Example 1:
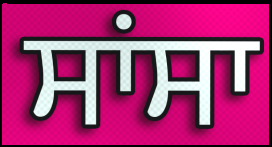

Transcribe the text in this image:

ਸਾਂਸਾ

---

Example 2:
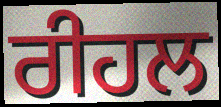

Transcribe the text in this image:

ਰੀਹਲ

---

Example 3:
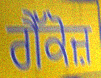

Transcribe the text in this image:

ਗੈੱਕੋਜ਼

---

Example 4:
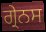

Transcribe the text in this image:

ਗ੍ਰੇਨਸ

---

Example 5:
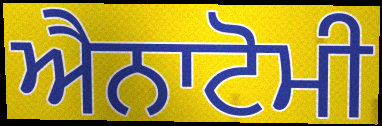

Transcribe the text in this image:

ਐਨਾਟੋਮੀ